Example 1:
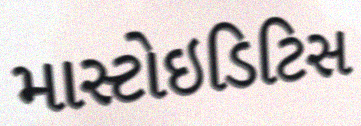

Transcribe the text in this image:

માસ્ટોઇડિટિસ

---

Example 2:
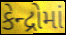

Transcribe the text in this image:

કેન્દ્રોમાં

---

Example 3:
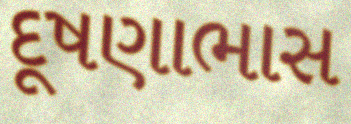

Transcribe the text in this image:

દૂષણાભાસ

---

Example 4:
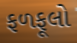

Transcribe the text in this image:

ફળફૂલો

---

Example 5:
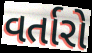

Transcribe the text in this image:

વર્તારો